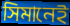
সিমানেই